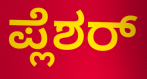
ಪ್ಲೆಶರ್